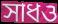
সাধও